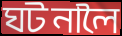
ঘটনালৈ